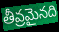
తీవ్రమైనది